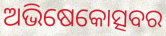
ଅଭିଷେକୋତ୍ସବର